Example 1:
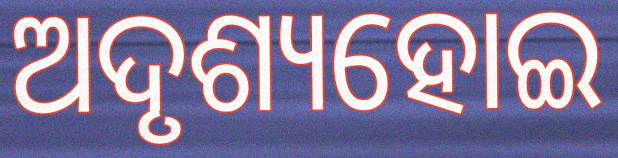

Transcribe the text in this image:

ଅଦୃଶ୍ୟହୋଇ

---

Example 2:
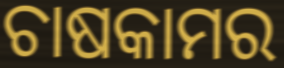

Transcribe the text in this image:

ଚାଷକାମର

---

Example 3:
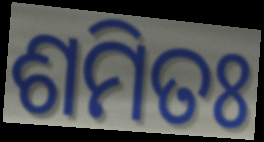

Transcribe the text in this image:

ଶମିତଃ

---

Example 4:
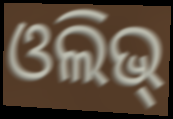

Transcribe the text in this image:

ଓଲିଭ୍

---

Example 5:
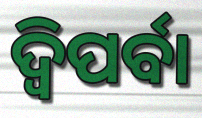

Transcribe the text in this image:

ଦ୍ଵିପର୍ବା